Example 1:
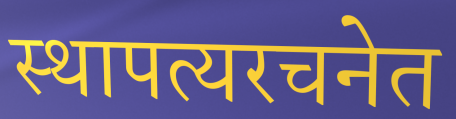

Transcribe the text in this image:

स्थापत्यरचनेत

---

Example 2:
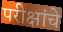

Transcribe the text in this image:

परीक्षांचे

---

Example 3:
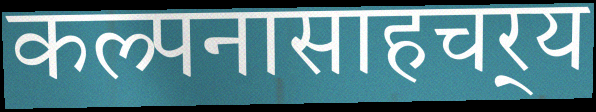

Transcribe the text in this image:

कल्पनासाहचर्य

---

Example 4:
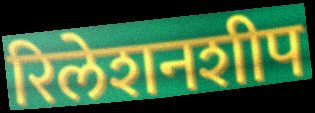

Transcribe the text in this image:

रिलेशनशीप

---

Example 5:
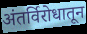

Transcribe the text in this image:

अंतर्विरोधातून